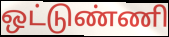
ஒட்டுண்ணி